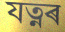
যত্নৰ